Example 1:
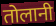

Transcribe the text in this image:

तोलानी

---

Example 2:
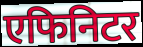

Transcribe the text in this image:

एफिनिटर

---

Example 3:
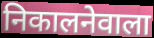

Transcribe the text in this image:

निकालनेवाला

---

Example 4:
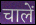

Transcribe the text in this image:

चालें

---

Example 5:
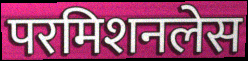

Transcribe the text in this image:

परमिशनलेस